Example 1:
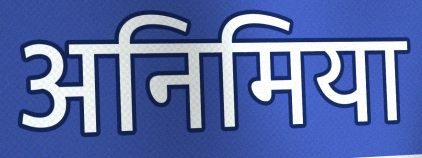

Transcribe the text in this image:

अनिमिया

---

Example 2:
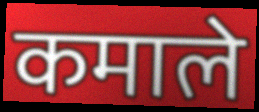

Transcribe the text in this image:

कमाले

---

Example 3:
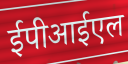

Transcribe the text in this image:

ईपीआईएल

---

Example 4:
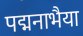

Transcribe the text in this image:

पद्मनाभैया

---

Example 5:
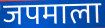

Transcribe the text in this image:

जपमाला